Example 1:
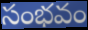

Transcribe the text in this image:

సంభవం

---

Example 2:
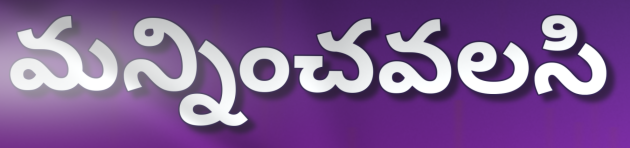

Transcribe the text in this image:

మన్నించవలసి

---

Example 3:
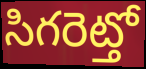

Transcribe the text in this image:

సిగరెట్తో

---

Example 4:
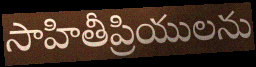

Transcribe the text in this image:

సాహితీప్రియులను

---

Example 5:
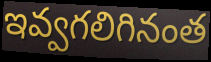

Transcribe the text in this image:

ఇవ్వగలిగినంత